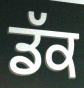
ਡੱਕ